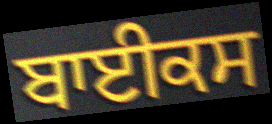
ਬਾਈਕਸ